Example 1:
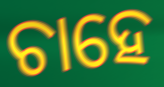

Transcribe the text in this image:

ଚାହେ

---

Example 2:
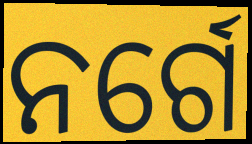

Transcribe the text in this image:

ନର୍ଗେ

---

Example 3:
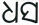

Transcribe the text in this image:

ଧସ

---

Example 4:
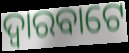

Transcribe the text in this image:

ଦ୍ୱାରବାଟେ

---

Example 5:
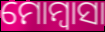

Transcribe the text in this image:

ମୋମ୍ବାସା